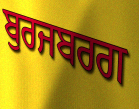
ਬੁਰਜਬਰਗ